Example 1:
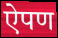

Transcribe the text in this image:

ऐपण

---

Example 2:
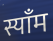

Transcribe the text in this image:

स्याँम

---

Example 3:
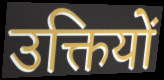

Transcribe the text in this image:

उक्तियों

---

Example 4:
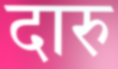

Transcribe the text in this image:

दारु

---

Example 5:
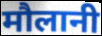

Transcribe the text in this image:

मौलानी